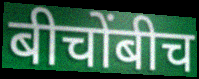
बीचोंबीच